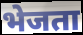
भेजता